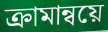
ক্রামান্বয়ে